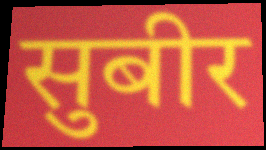
सुबीर